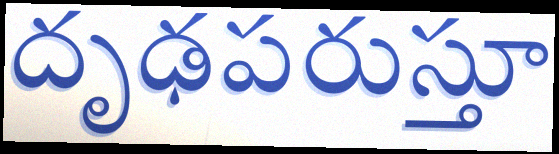
దృఢపరుస్తూ